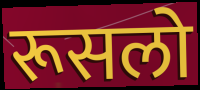
रूसलो